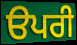
ੳਪਰੀ